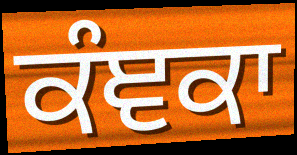
ਕੰਞਕਾ